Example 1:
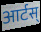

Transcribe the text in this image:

आर्टस्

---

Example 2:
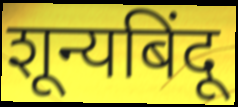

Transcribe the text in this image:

शून्यबिंदू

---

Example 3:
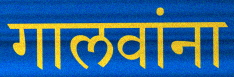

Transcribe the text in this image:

गालवांना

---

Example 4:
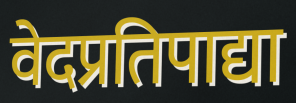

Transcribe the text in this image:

वेदप्रतिपाद्या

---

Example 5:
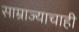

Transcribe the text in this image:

साम्राज्याचाही